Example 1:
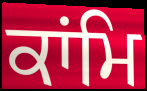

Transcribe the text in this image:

ਕਾਂਮਿ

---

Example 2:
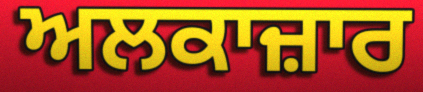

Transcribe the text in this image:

ਅਲਕਾਜ਼ਾਰ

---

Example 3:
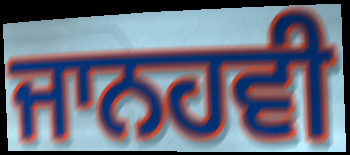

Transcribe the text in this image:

ਜਾਨਹਵੀ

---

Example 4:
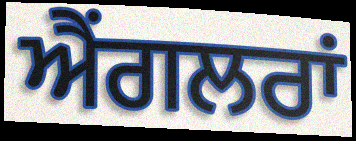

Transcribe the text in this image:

ਐਂਗਲਰਾਂ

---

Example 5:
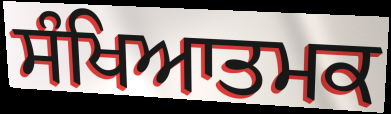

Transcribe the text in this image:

ਸੰਖਿਆਤਮਕ